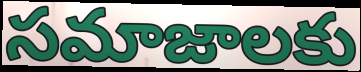
సమాజాలకు